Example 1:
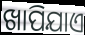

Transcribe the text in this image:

ଖାପିଯାଏ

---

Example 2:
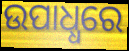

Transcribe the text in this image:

ଉପାଧ୍ଧରେ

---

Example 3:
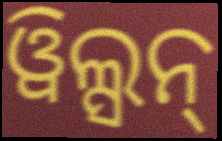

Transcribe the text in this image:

ୱିଲ୍ସନ୍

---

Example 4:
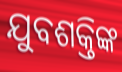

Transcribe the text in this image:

ଯୁବଶକ୍ତିଙ୍କ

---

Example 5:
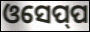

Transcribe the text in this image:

ଓସେପ୍‍ପ